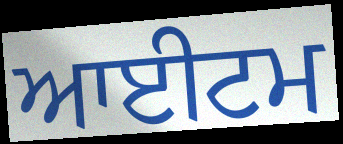
ਆਈਟਮ